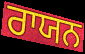
ਰਾਯਨ